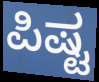
ಪಿಷ್ಟ